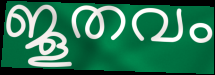
ജൂതവം